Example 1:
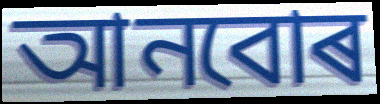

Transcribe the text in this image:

আনবোৰ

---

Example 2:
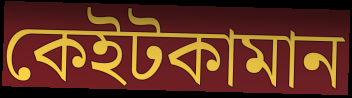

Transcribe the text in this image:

কেইটকামান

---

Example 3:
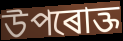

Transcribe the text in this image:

উপৰোক্ত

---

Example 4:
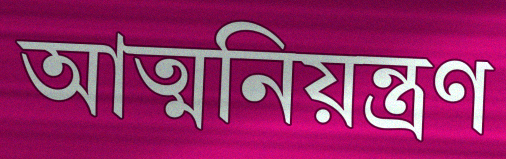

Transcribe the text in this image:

আত্মনিয়ন্ত্ৰণ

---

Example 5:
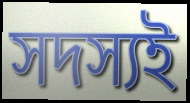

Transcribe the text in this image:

সদস্যই